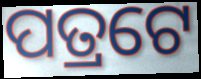
ପତ୍ରଟେ